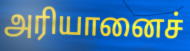
அரியானைச்